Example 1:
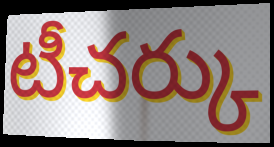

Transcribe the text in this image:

టీచర్కు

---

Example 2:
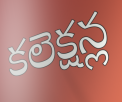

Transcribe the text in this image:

కలెక్షన్ల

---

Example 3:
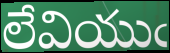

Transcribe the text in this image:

లేవియుఁ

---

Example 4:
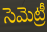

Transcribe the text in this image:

సెమెట్రీ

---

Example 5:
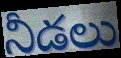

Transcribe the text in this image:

నీడలు